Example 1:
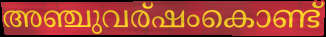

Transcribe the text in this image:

അഞ്ചുവര്ഷംകൊണ്ട്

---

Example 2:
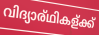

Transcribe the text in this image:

വിദ്യാര്ഥികള്ക്ക്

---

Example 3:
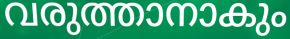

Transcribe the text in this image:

വരുത്താനാകും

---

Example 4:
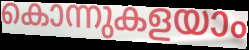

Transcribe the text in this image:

കൊന്നുകളയാം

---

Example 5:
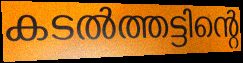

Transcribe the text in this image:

കടൽത്തട്ടിന്റെ